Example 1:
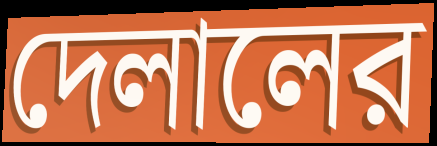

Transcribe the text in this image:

দেলালের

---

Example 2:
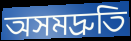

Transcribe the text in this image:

অসমদ্রুতি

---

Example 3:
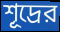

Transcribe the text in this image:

শূদ্রের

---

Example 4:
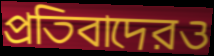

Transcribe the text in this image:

প্রতিবাদেরও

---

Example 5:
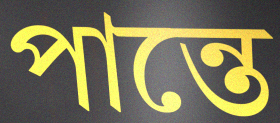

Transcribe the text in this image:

পান্তে